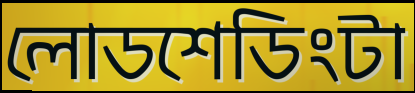
লোডশেডিংটা